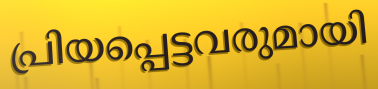
പ്രിയപ്പെട്ടവരുമായി